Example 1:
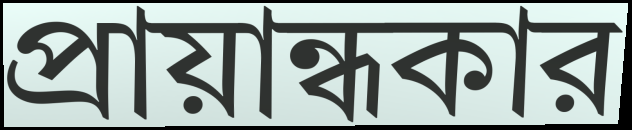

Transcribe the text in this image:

প্রায়ান্ধকার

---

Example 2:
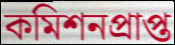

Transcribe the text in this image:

কমিশনপ্রাপ্ত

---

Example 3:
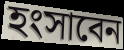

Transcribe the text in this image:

হংসাবেন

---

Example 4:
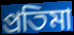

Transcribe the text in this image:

প্রতিমা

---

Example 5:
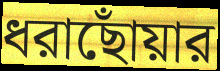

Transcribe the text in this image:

ধরাছোঁয়ার